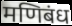
मणिबंध